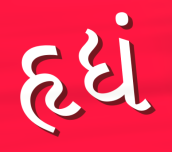
હૃદ્યં